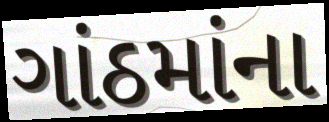
ગાંઠમાંના